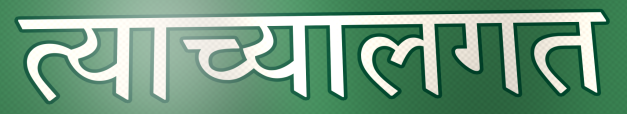
त्याच्यालगत